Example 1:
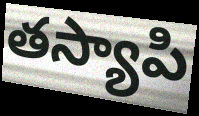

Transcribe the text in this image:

తస్యాపి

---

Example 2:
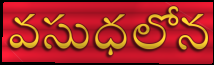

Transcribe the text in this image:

వసుధలోన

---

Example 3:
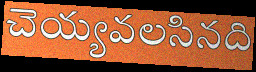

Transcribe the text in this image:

చెయ్యవలసినది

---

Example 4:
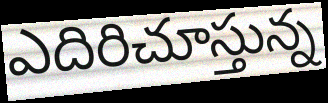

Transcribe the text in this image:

ఎదిరిచూస్తున్న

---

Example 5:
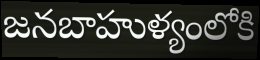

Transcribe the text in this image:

జనబాహుళ్యంలోకి